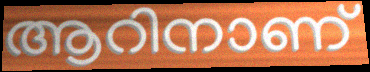
ആറിനാണ്